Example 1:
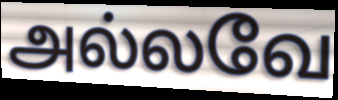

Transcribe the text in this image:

அல்லவே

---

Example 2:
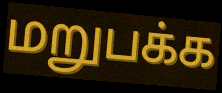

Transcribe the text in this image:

மறுபக்க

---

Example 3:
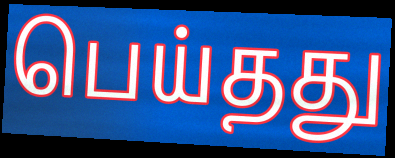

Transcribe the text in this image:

பெய்தது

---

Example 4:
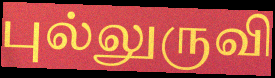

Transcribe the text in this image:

புல்லுருவி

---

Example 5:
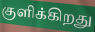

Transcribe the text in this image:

குளிக்கிறது